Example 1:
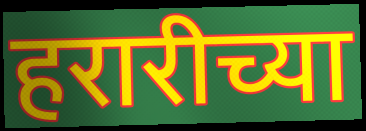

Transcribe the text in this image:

हरारीच्या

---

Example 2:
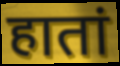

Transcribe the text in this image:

हातां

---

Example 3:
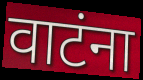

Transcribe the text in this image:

वाटंना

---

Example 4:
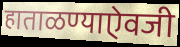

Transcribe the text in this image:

हाताळण्याऐवजी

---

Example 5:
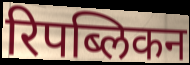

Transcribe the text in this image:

रिपब्लिकन